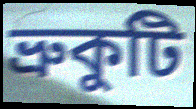
ভ্ৰুকুটি